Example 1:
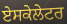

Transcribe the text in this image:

ਏਸਕੇਲੇਟਰ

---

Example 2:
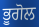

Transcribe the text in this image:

ਭੂਗੋਲ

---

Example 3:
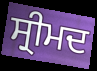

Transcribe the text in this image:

ਸ੍ਰੀਮਦ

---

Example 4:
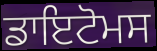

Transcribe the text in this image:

ਡਾਇਟੋਮਸ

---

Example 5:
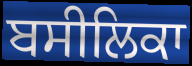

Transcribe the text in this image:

ਬਸੀਲਿਕਾ